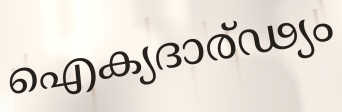
ഐക്യദാര്ഢ്യം